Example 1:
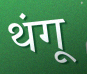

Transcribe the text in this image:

थंगू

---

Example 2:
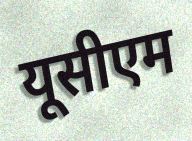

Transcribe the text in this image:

यूसीएम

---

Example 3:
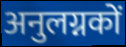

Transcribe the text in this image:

अनुलग्नकों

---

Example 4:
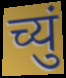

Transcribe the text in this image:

च्युं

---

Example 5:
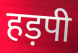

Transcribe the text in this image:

हड़पी